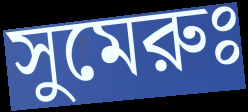
সুমেরুঃ